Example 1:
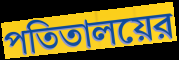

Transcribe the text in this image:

পতিতালয়ের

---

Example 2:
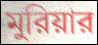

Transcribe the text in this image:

মুরিয়ার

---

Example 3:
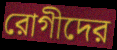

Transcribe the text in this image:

রোগীদের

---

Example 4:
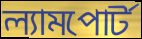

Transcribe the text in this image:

ল্যামপোর্ট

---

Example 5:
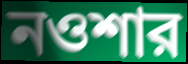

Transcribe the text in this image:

নওশার